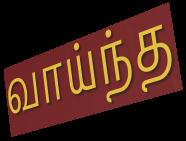
வாய்ந்த